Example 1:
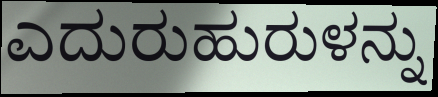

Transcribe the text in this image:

ಎದುರುಹುರುಳನ್ನು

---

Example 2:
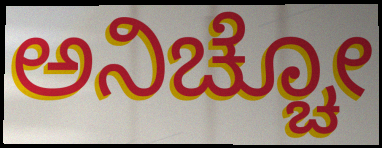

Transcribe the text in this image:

ಅನಿಚ್ಚೋ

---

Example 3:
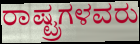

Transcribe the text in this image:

ರಾಷ್ಟ್ರಗಳವರು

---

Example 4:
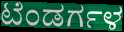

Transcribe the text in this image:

ಟೆಂಡರ್ಗಳ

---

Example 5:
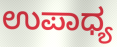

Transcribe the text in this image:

ಉಪಾಧ್ಯ